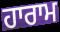
ਹਾਰਾਮ